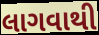
લાગવાથી